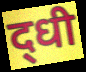
द्धी